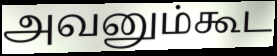
அவனும்கூட